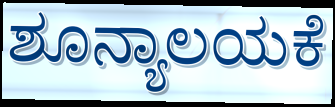
ಶೂನ್ಯಾಲಯಕೆ